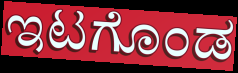
ಇಟಗೊಂಡ